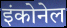
इंकोनेल